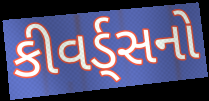
કીવર્ડ્સનો